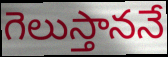
గెలుస్తాననే